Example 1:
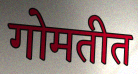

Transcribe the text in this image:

गोमतीत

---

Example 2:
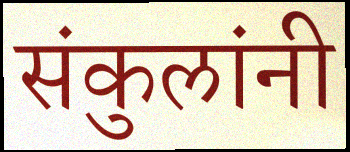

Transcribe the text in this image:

संकुलांनी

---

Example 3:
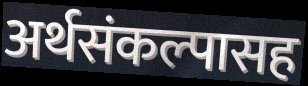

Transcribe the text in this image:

अर्थसंकल्पासह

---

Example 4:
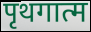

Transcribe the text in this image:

पृथगात्म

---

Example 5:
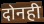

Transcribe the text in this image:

दोनही